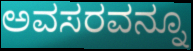
ಅವಸರವನ್ನೂ